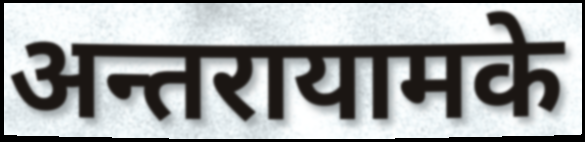
अन्तरायामके